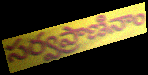
సర్వప్రాణినాం